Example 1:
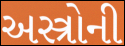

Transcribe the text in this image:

અસ્ત્રોની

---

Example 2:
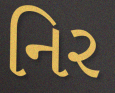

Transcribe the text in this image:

નિર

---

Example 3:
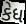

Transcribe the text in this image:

કેધ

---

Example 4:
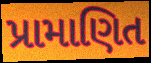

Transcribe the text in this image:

પ્રામાણિત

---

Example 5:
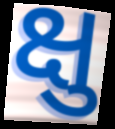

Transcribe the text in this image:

ક્ષુ